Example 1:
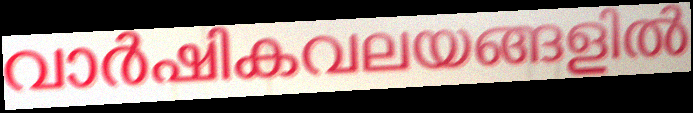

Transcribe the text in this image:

വാർഷികവലയങ്ങളിൽ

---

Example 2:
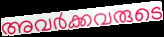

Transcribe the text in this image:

അവർക്കവരുടെ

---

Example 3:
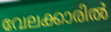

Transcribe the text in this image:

വേലക്കാരിൽ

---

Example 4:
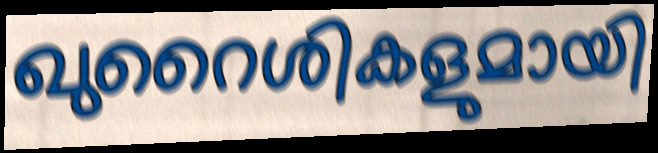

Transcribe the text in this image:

ഖുറൈശികളുമായി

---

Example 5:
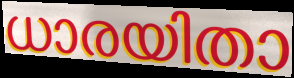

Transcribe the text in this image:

ധാരയിതാ